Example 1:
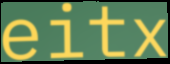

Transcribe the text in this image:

eitx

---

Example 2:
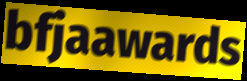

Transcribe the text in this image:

bfjaawards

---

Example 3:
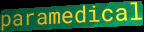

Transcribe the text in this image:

paramedical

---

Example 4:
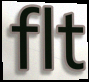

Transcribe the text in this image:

flt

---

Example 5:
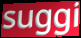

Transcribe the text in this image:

suggi